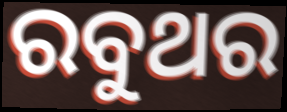
ରବୁଥର